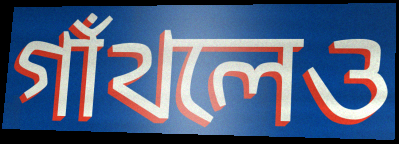
গাঁথলেও